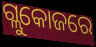
ଗ୍ଲୁକୋଜରେ